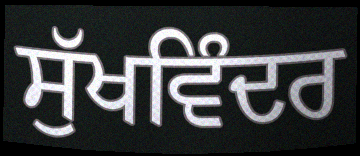
ਸੁੱਖਵਿੰਦਰ